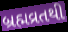
બ્રહ્મવ્રતથી